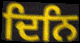
ਦਿਨਿ